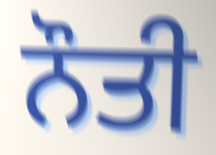
ਨੌਤੀ